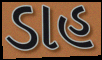
ડાહ